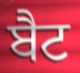
ਬੈਟ